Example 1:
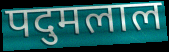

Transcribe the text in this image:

पदुमलाल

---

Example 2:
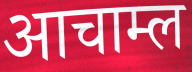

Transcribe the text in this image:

आचाम्ल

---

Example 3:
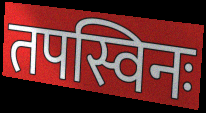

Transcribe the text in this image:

तपस्विनः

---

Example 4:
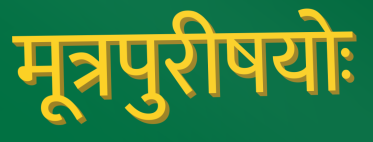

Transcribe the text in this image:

मूत्रपुरीषयोः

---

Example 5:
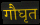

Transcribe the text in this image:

गौघृत